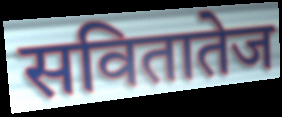
सवितातेज